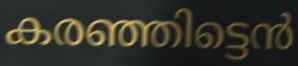
കരഞ്ഞിട്ടെൻ